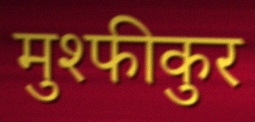
मुश्फीकुर